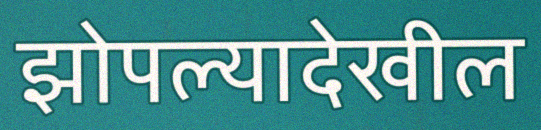
झोपल्यादेखील